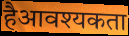
हैआवश्यकता